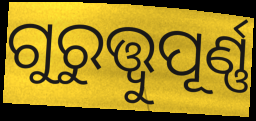
ଗୁରୁତ୍ତ୍ୱୁପୂର୍ଣ୍ଣ